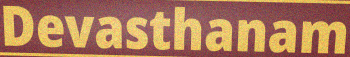
Devasthanam